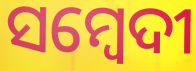
ସମ୍ବେଦୀ